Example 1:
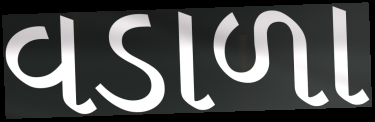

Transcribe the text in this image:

વડાળા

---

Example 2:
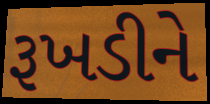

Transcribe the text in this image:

રૂખડીને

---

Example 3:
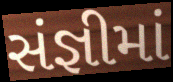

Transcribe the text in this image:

સંજ્ઞીમાં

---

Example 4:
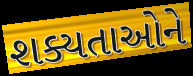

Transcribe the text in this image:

શક્યતાઓને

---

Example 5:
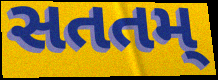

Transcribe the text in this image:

સતતમ્